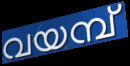
വയമ്പ്